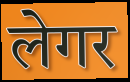
लेगर